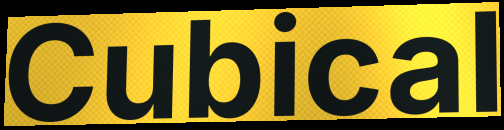
Cubical